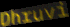
Dhruvi